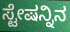
ಸ್ಟೇಷನ್ನಿನ